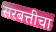
सरबत्तीचा